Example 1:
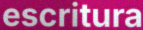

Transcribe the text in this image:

escritura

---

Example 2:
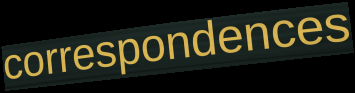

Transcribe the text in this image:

correspondences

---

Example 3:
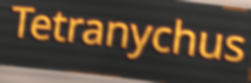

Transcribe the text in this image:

Tetranychus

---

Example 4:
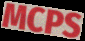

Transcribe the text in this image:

MCPS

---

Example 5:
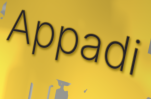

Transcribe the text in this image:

Appadi